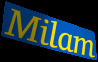
Milam